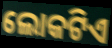
ଲୋକଟିଏ